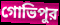
গোভিপুর